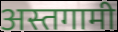
अस्तगामी